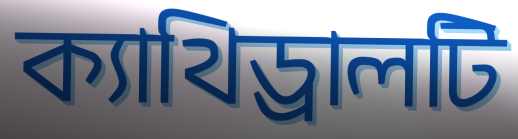
ক্যাথিড্রালটি